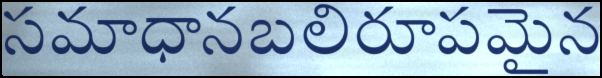
సమాధానబలిరూపమైన